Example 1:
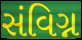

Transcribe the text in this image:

સંવિગ્ન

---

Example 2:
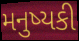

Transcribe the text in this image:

મનુષ્યકી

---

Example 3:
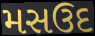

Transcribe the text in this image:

મસઉદ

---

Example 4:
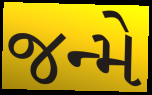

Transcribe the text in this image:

જન્મે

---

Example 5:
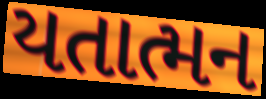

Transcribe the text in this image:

યતાત્મન